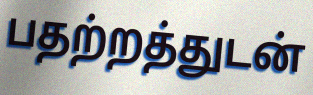
பதற்றத்துடன்